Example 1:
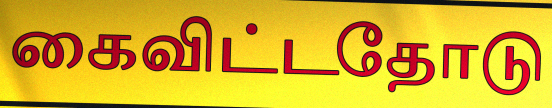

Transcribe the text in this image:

கைவிட்டதோடு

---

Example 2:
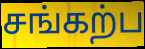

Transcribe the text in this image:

சங்கற்ப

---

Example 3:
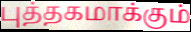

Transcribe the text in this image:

புத்தகமாக்கும்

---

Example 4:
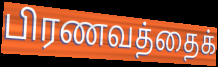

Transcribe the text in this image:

பிரணவத்தைக்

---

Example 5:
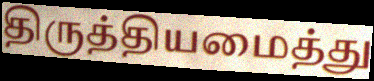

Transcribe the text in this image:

திருத்தியமைத்து